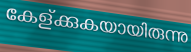
കേള്ക്കുകയായിരുന്നു